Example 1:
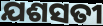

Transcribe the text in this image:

ଯଶସତୀ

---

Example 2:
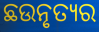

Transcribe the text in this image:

ଛଉନୃତ୍ୟର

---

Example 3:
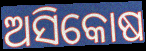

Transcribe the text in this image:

ଅସିକୋଷ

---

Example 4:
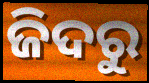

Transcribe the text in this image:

ଜିଦରୁ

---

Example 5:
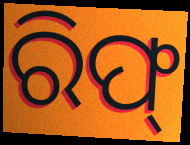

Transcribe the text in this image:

ରିଫ୍